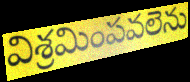
విశ్రమింపవలెను